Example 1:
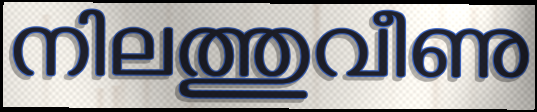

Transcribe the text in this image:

നിലത്തുവീണു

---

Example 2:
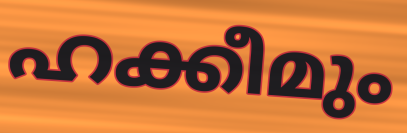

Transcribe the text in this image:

ഹക്കീമും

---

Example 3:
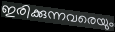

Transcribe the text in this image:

ഇരിക്കുന്നവരെയും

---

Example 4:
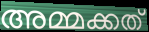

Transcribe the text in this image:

അമ്മക്കത്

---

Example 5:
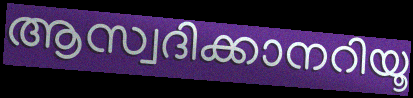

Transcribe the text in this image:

ആസ്വദിക്കാനറിയൂ